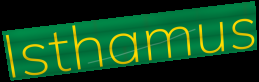
Isthamus